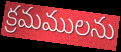
క్రమములను